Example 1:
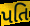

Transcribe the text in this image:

પતિ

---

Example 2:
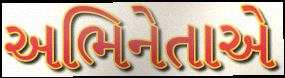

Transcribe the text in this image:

અભિનેતાએ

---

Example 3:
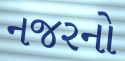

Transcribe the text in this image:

નજરનો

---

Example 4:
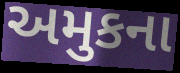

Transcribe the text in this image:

અમુકના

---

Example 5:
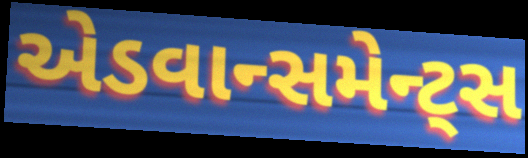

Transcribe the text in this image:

એડવાન્સમેન્ટ્સ